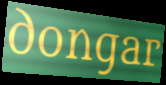
dongar